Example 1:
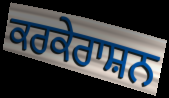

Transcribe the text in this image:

ਕਰਕੇਰਾਸ਼ਨ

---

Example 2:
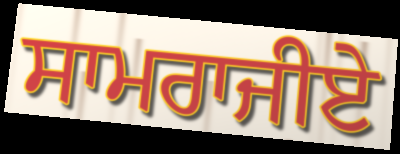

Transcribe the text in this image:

ਸਾਮਰਾਜੀਏ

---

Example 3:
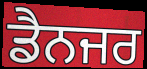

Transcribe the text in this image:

ਡੈਨਜਰ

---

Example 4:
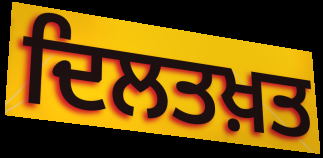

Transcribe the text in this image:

ਦਿਲਤਖ਼ਤ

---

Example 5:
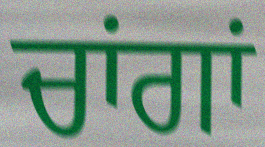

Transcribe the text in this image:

ਚਾਂਗਾਂ